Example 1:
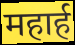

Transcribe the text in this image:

महार्ह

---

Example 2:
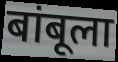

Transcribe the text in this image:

बांबूला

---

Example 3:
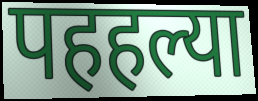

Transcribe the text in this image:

पहहल्या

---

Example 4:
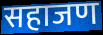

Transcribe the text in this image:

सहाजण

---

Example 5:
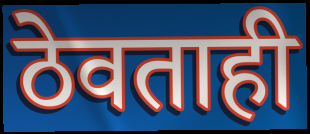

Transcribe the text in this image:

ठेवताही